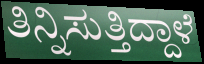
ತಿನ್ನಿಸುತ್ತಿದ್ದಾಳೆ